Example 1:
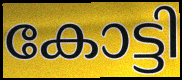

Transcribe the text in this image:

കോട്ടി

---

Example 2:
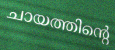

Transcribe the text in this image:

ചായത്തിന്റെ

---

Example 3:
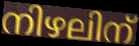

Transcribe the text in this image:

നിഴലിന്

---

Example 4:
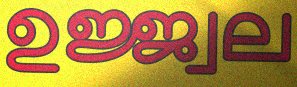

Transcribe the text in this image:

ഉജ്ജ്വല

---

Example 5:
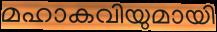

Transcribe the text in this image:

മഹാകവിയുമായി